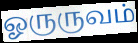
ஓருருவம்